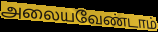
அலையவேண்டாம்